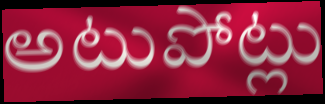
అటుపోట్లు